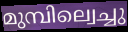
മുമ്പില്വെച്ചു